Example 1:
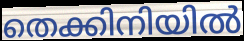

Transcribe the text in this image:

തെക്കിനിയിൽ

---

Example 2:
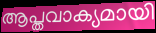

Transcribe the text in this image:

ആപ്തവാക്യമായി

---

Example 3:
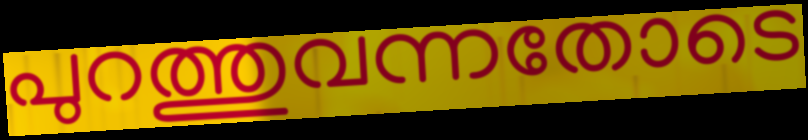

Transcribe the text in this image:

പുറത്തുവന്നതോടെ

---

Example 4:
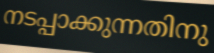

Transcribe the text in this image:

നടപ്പാക്കുന്നതിനു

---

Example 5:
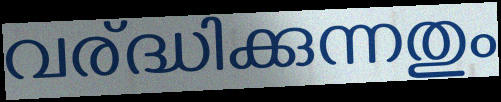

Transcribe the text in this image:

വര്ദ്ധിക്കുന്നതും